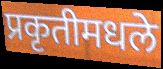
प्रकृतीमधले